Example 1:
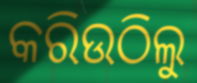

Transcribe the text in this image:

କରିଉଠିଲୁ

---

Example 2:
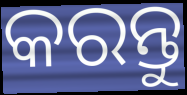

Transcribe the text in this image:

କରନ୍ତୁ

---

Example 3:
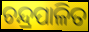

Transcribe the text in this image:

ଚନ୍ଦ୍ରପାଳିତ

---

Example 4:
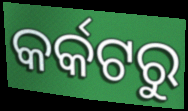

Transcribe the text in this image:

କର୍କଟରୁ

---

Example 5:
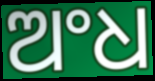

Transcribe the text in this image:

ଅଂଧ